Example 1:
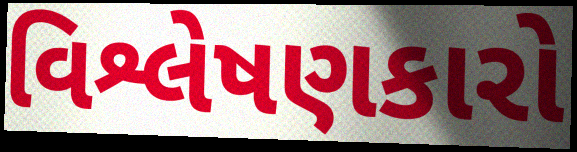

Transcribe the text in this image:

વિશ્લેષણકારો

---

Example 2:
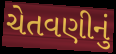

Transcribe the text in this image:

ચેતવણીનું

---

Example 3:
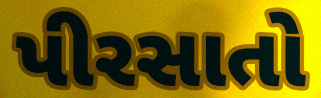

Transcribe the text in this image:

પીરસાતો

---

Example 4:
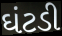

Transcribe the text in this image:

ઘંટડી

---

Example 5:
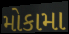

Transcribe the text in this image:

મોકામા